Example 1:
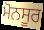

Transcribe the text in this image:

ਮੋਨਸੂਰ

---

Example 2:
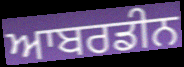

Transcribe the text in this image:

ਆਬਰਡੀਨ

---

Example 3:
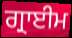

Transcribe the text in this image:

ਗ੍ਰਾਈਮ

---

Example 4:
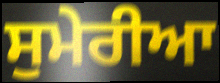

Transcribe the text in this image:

ਸੁਮੇਰੀਆ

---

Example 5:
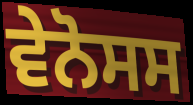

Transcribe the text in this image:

ਵੇਨੋਸਸ